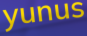
yunus